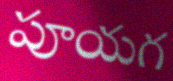
పూయగ